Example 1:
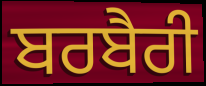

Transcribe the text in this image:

ਬਰਬੈਰੀ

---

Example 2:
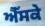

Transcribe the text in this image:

ਐੱਸਕੇ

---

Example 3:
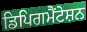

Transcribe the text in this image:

ਡਿਪਿਗਮੈਂਟੇਸ਼ਨ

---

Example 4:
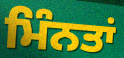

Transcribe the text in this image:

ਮਿੰਨਤਾਂ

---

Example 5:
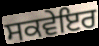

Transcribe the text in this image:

ਸਕਵੇਇਰ